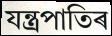
যন্ত্ৰপাতিৰ